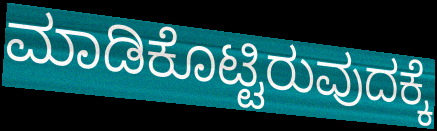
ಮಾಡಿಕೊಟ್ಟಿರುವುದಕ್ಕೆ